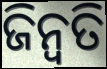
ଜିନ୍ୱତି